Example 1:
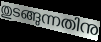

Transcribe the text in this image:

തുടങ്ങുന്നതിനു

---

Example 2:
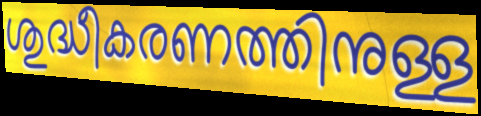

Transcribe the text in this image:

ശുദ്ധീകരണത്തിനുള്ള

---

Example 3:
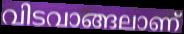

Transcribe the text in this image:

വിടവാങ്ങലാണ്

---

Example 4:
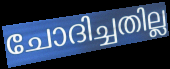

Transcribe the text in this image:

ചോദിച്ചതില്ല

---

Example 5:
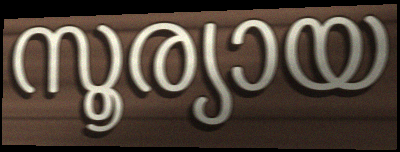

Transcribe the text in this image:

സൂര്യായ